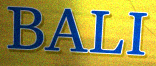
BALI